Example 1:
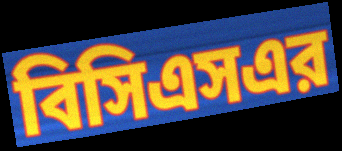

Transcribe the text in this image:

বিসিএসএর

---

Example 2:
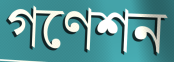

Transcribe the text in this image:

গণেশন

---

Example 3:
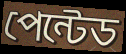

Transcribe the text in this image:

পেন্টেড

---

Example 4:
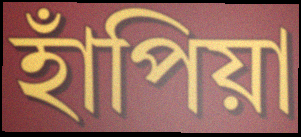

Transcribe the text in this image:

হাঁপিয়া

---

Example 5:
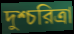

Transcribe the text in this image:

দুশ্চরিত্রা